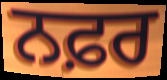
ਨਫ਼ਰ